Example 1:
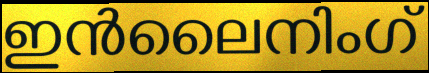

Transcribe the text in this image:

ഇൻലൈനിംഗ്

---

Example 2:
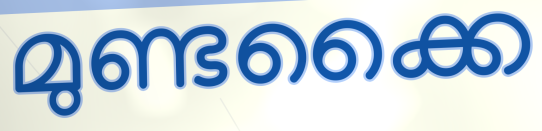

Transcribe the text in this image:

മുണ്ടക്കൈ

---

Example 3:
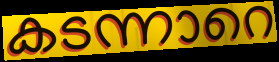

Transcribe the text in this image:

കടന്നാറെ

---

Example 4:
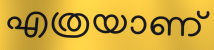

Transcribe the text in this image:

എത്രയാണ്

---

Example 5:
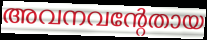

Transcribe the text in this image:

അവനവന്റേതായ